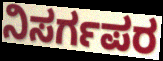
ನಿಸರ್ಗಪರ